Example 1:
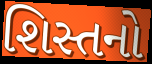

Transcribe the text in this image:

શિસ્તનો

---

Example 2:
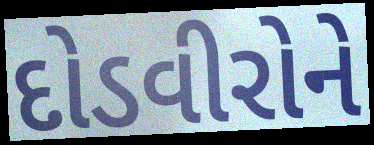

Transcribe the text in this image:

દોડવીરોને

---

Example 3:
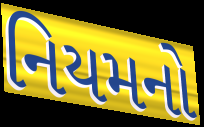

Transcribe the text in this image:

નિયમનો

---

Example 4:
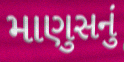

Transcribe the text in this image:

માણુસનું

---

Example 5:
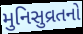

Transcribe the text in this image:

મુનિસુવ્રતનો